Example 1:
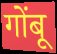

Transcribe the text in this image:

गोंबू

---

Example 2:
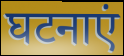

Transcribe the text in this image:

घटनाएं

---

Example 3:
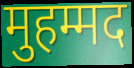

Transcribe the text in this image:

मुहम्मद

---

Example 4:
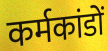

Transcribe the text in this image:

कर्मकांडों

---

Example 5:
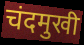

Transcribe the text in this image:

चंदमुखी